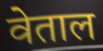
वेताल